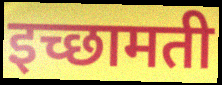
इच्छामती